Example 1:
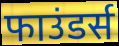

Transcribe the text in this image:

फाउंडर्स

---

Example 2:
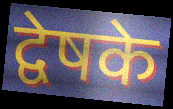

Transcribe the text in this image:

द्वेषके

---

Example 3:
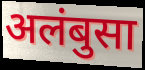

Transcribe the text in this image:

अलंबुसा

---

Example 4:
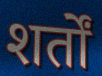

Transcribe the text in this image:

शर्तों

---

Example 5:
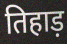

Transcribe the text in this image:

तिहाड़